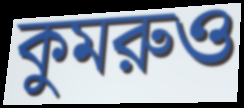
কুমরুও